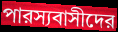
পারস্যবাসীদের